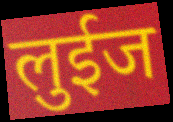
लुईज